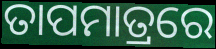
ତାପମାତ୍ରରେ